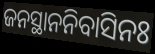
ଜନସ୍ଥାନନିବାସିନଃ